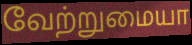
வேற்றுமையா